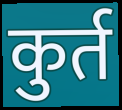
कुर्त